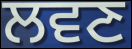
ਲਵਣ